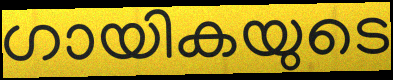
ഗായികയുടെ